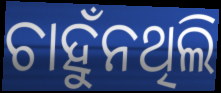
ଚାହୁଁନଥିଲି